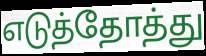
எடுத்தோத்து